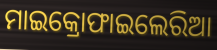
ମାଇକ୍ରୋଫାଇଲେରିଆ